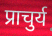
प्राचुर्य